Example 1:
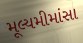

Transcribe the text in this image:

મૂલ્યમીમાંસા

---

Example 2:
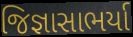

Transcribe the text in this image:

જિજ્ઞાસાભર્યા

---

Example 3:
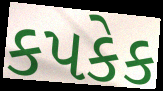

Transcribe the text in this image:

કપકેક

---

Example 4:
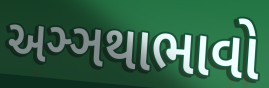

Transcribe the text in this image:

અઞ્ઞથાભાવો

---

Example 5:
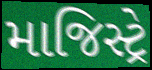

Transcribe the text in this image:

માજિસ્ટ્રે